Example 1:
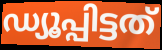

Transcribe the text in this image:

ഡ്യൂപ്പിട്ടത്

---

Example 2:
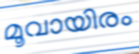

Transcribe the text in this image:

മൂവായിരം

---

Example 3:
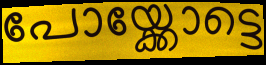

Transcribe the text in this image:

പോയ്ക്കോട്ടെ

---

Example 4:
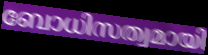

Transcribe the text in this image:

ബോധിസത്വമായി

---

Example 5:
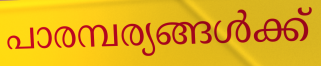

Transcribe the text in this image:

പാരമ്പര്യങ്ങൾക്ക്